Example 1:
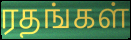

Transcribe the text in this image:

ரதங்கள்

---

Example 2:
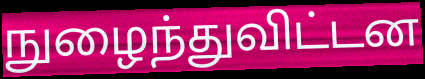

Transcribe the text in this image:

நுழைந்துவிட்டன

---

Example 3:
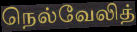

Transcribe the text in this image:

நெல்வேலித்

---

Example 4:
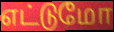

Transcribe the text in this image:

எட்டுமோ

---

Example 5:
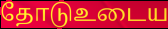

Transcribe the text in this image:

தோடுஉடைய